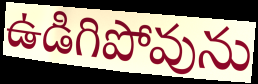
ఉడిగిపోవును